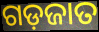
ଗଡ଼ଜାତ